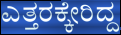
ಎತ್ತರಕ್ಕೇರಿದ್ದ